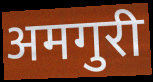
अमगुरी